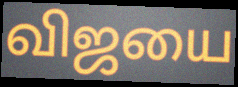
விஜயை